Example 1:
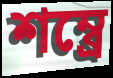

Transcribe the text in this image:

শম্ব্রে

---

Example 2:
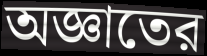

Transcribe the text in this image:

অজ্ঞাতের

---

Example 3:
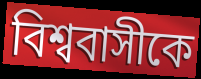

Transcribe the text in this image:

বিশ্ববাসীকে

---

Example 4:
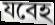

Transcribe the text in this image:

যবেহ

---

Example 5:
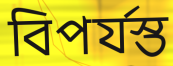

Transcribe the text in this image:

বিপর্যস্ত